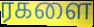
ரகளை